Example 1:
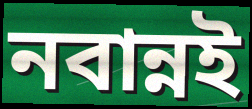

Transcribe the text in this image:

নবান্নই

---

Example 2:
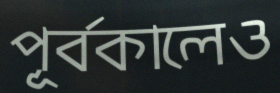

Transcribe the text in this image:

পূর্বকালেও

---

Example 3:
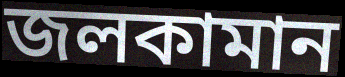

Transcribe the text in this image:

জলকামান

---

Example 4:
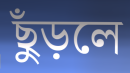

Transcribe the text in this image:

ছুঁড়লে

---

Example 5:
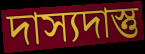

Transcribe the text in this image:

দাস্যদাস্তু